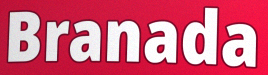
Branada